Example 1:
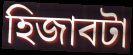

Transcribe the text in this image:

হিজাবটা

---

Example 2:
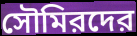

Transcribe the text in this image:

সৌমিরদের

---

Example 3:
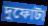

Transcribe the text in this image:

দুফোটা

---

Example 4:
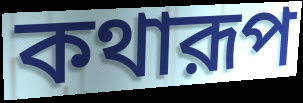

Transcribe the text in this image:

কথারূপ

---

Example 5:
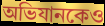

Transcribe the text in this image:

অভিযানকেও